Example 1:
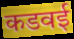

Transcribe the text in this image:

कडवई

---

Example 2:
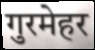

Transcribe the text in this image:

गुरमेहर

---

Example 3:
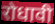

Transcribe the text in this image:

रोधावी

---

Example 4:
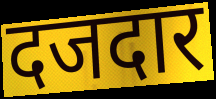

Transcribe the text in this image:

दजदार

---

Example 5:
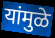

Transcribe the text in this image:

यांमुळे